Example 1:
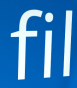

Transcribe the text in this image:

fil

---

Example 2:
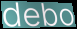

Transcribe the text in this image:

debo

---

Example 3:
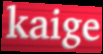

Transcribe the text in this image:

kaige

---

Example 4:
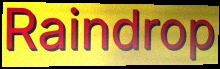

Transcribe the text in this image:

Raindrop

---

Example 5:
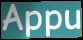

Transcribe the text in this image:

Appu